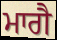
ਮਾਗੈ